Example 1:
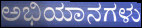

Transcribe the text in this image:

ಅಭಿಯಾನಗಳು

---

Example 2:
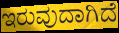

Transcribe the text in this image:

ಇರುವುದಾಗಿದೆ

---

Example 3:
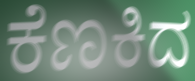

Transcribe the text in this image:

ಕೆಣಕಿದ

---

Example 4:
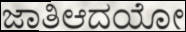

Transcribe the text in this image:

ಜಾತಿಆದಯೋ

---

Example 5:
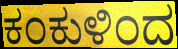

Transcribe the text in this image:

ಕಂಕುಳಿಂದ